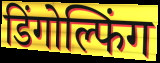
डिंगोल्फिंग